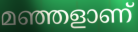
മഞ്ഞളാണ്